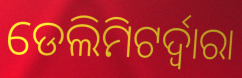
ଡେଲିମିଟର୍ଦ୍ୱାରା